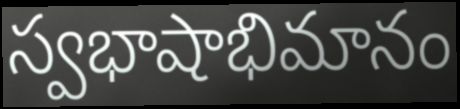
స్వభాషాభిమానం